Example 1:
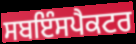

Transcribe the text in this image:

ਸਬਇੰਸਪੈਕਟਰ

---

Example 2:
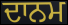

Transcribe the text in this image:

ਦਾਨਮ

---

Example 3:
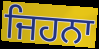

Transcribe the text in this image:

ਜਿਹਨਾ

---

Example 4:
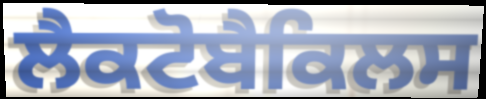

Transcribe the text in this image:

ਲੈਕਟੋਬੈਕਿਲਸ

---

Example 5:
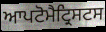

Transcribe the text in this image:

ਆਪਟੋਮੈਟ੍ਰਿਸਟਸ